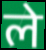
ले